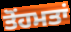
ਤੋਂਹਮਤਾਂ